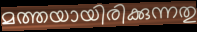
മത്തയായിരിക്കുന്നതു